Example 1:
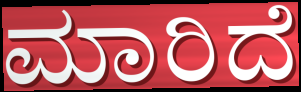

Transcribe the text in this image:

ಮಾರಿದೆ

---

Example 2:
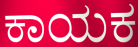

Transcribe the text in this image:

ಕಾಯಕ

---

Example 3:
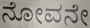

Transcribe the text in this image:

ನೋವನೇ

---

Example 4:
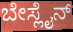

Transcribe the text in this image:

ಬೇಸ್ಲೈನ್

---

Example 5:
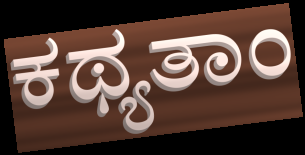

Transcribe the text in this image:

ಕಥ್ಯತಾಂ